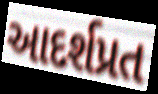
આદર્શપ્રત